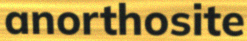
anorthosite